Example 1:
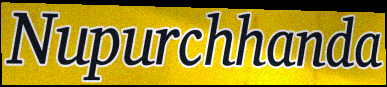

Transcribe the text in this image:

Nupurchhanda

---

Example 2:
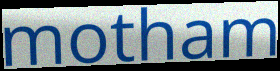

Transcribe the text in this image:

motham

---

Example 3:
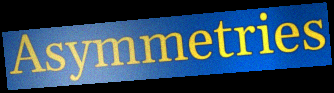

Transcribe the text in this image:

Asymmetries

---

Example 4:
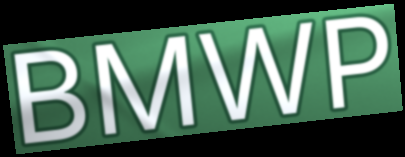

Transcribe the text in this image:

BMWP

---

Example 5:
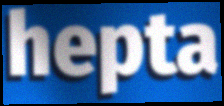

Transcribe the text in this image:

hepta